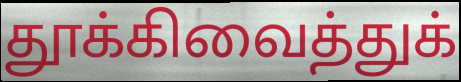
தூக்கிவைத்துக்